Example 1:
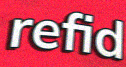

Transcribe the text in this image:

refid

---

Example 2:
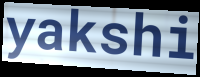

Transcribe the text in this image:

yakshi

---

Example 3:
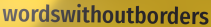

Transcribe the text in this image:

wordswithoutborders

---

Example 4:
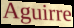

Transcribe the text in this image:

Aguirre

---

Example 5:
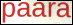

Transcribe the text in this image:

paara